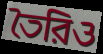
তৈরিও